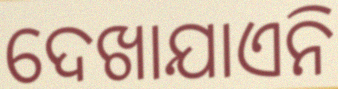
ଦେଖାଯାଏନି